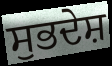
ਸੁਭਦੇਸ਼